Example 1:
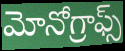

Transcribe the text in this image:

మోనోగ్రాఫ్స్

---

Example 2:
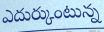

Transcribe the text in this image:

ఎదుర్కుంటున్న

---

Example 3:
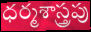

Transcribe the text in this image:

ధర్మశాస్త్రపు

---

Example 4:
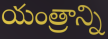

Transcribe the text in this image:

యంత్రాన్ని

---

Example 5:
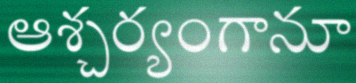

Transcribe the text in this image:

ఆశ్చర్యంగానూ